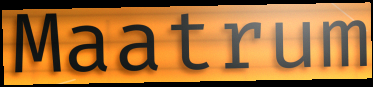
Maatrum